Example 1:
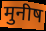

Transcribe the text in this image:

मुनीष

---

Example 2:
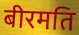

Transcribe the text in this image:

बीरमति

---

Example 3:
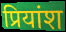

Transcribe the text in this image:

प्रियांश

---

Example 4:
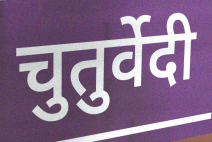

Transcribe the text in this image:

चुतुर्वेदी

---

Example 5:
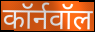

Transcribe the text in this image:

कॉर्नवॉल